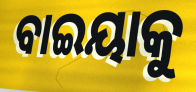
ବାଇୟାକୁ